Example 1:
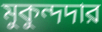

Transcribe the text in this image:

মুকুন্দদার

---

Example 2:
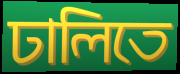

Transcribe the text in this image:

ঢালিতে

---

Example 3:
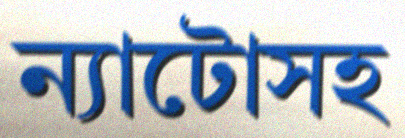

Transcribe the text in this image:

ন্যাটোসহ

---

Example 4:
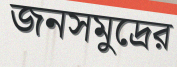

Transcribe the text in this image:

জনসমুদ্রের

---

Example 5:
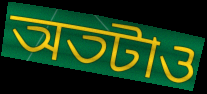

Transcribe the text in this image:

অতটাও